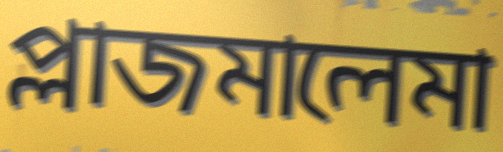
প্লাজমালেমা